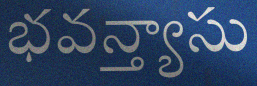
భవన్త్యాసు